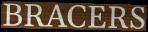
BRACERS